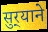
सुर्याने